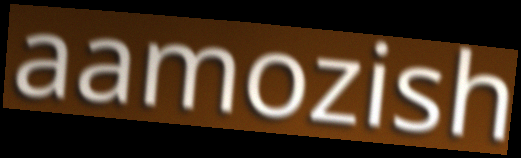
aamozish